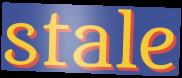
stale